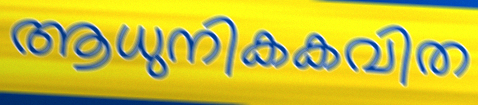
ആധുനികകവിത